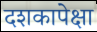
दशकापेक्षा